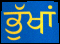
ਭੁੱਖਾਂ